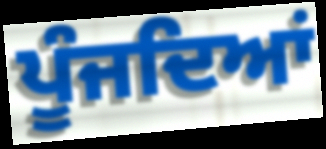
ਪੂੰਜਦਿਆਂ